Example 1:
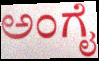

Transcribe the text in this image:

ಅಂಗೈ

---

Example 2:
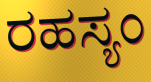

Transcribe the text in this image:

ರಹಸ್ಯಂ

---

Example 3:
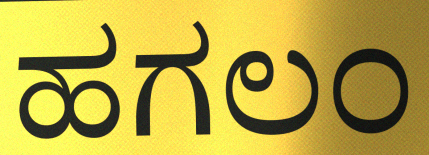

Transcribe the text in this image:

ಹಗಲಂ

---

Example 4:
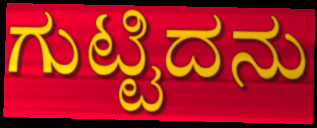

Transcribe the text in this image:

ಗುಟ್ಟಿದನು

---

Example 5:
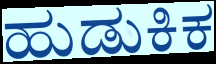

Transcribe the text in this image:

ಹುಡುಕಿಕ